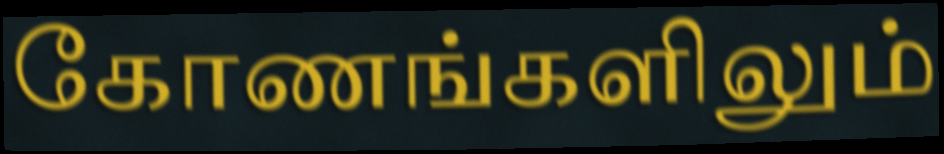
கோணங்களிலும்